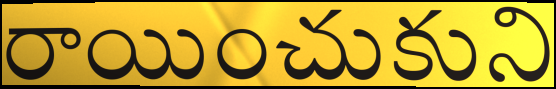
రాయించుకుని